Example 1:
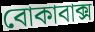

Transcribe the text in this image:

বোকাবাক্স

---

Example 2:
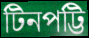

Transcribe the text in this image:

টিনপট্টি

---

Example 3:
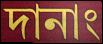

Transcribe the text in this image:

দানাং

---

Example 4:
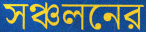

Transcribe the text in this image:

সঞ্চলনের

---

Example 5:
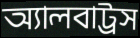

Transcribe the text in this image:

অ্যালবাট্রস